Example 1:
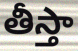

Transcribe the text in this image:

తీస్తా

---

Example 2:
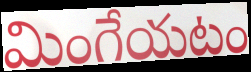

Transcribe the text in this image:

మింగేయటం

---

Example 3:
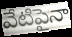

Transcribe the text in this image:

వేటిపైనా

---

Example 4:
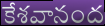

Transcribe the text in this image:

కేశవానంద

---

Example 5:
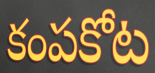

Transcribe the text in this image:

కంపకోట